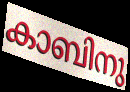
കാബിനു